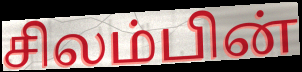
சிலம்பின்